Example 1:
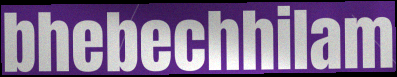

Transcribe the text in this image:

bhebechhilam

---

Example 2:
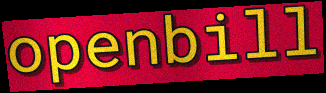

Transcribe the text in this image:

openbill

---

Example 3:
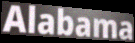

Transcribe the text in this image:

Alabama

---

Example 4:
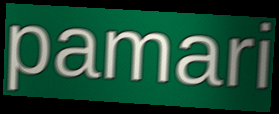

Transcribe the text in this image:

pamari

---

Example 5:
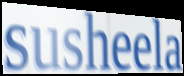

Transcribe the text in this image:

susheela